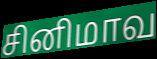
சினிமாவ